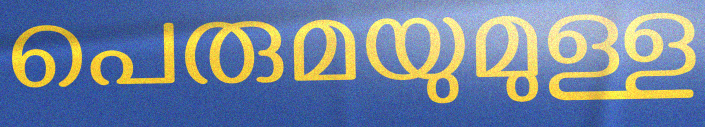
പെരുമയുമുള്ള